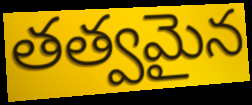
తత్వమైన